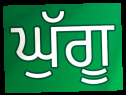
ਘੁੱਗੂ